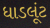
ધાડલૂંટ